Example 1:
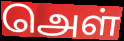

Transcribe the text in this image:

அெள்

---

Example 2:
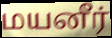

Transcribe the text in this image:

மயனீர்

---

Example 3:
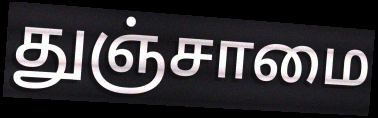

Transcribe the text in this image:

துஞ்சாமை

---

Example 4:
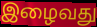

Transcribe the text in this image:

இழைவது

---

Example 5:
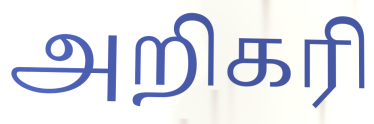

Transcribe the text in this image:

அறிகரி